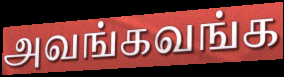
அவங்கவங்க